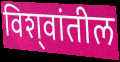
विश्वांतील